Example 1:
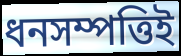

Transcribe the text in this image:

ধনসম্পত্তিই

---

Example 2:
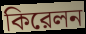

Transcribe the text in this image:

কিরেলন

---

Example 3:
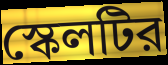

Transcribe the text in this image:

স্কেলটির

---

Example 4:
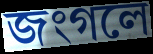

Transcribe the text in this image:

জংগলে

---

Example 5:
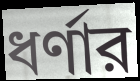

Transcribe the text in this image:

ধর্ণার